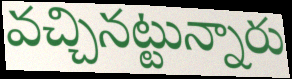
వచ్చినట్టున్నారు